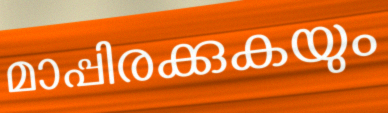
മാപ്പിരക്കുകയും